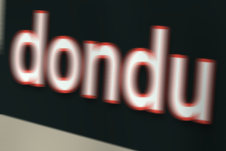
dondu